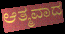
ಆತ್ಮವಾದ